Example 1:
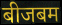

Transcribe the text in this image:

बीजबम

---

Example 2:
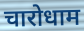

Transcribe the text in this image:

चारोधाम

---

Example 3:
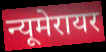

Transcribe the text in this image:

न्यूमेरायर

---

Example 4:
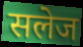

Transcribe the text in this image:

सलेज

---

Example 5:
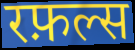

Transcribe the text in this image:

रफ़ल्स